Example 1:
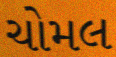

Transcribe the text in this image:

ચોમલ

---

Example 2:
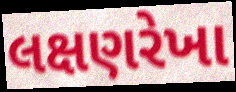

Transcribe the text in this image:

લક્ષણરેખા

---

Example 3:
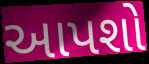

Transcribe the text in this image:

આપશો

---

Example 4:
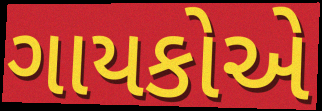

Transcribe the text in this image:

ગાયકોએ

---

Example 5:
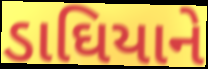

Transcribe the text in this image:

ડાઘિયાને